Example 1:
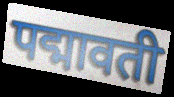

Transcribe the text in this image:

पद्मावती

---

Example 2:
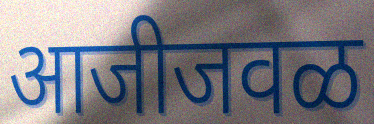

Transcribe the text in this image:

आजीजवळ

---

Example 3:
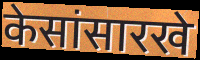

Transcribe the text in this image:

केसांसारखे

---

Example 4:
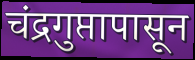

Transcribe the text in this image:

चंद्रगुप्तापासून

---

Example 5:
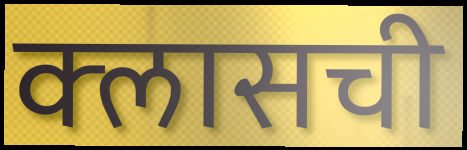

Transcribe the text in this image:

क्‍लासची